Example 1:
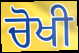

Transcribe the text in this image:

ਚੋਖੀ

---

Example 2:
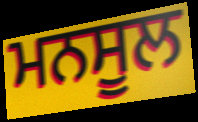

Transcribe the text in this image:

ਮਨਸੂਲ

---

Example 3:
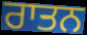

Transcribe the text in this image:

ਰਾਤਨ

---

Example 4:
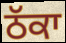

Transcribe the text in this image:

ਠੱਕਾ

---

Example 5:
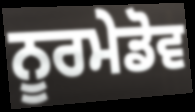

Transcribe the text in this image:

ਨੂਰਮੇਡੋਵ